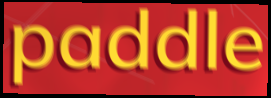
paddle